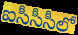
ఐసీసీసీలో